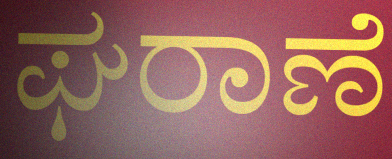
ಘರಾಣೆ